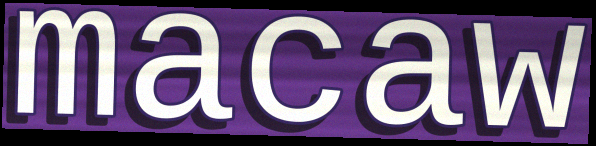
macaw